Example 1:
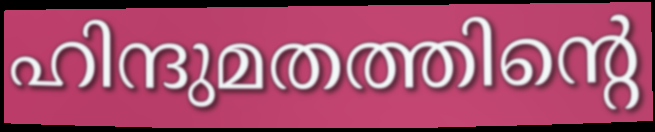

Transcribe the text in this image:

ഹിന്ദുമതത്തിന്റെ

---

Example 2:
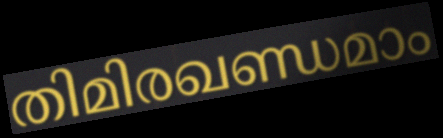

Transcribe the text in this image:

തിമിരഖണ്ഡമാം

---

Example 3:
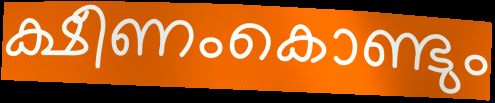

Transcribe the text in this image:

ക്ഷീണംകൊണ്ടും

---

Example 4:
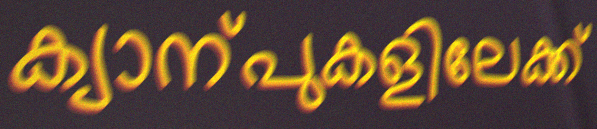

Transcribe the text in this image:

ക്യാന്പുകളിലേക്ക്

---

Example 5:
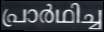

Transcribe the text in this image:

പ്രാർഥിച്ച